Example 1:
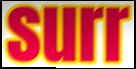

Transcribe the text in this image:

surr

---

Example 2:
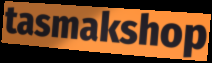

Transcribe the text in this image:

tasmakshop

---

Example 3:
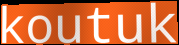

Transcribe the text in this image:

koutuk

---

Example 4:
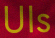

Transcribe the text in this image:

UIs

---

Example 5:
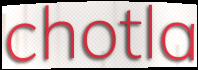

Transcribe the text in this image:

chotla